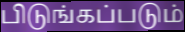
பிடுங்கப்படும்